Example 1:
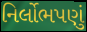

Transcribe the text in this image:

નિર્લોભપણું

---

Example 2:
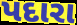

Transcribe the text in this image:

પદારા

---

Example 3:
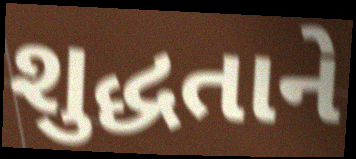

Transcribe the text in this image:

શુદ્ધતાને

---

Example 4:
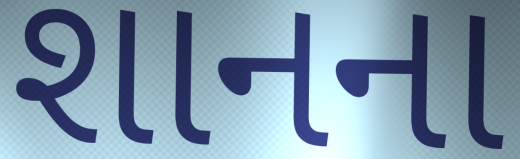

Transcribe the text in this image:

શાનના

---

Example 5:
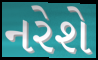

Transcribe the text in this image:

નરેશે